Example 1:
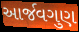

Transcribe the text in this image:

આર્જવગુણ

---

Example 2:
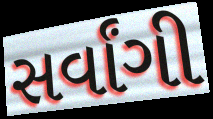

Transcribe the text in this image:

સર્વાંગી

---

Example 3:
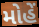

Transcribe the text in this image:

મોહેં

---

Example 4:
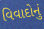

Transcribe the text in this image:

વિવાદોનું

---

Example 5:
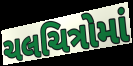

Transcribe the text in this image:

ચલચિત્રોમાં